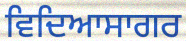
ਵਿਦਿਆਸਾਗਰ